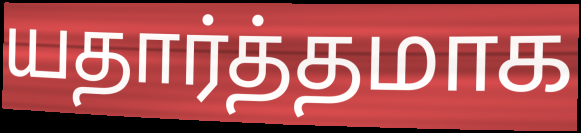
யதார்த்தமாக